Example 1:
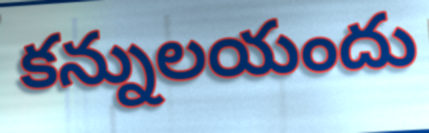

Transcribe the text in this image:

కన్నులయందు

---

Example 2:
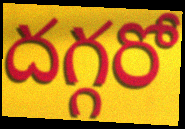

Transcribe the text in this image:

దగ్గరో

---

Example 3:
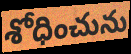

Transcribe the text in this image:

శోధించును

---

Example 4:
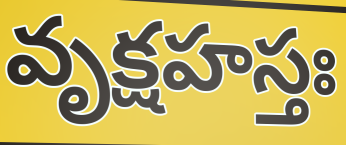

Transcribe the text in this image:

వృక్షహస్తః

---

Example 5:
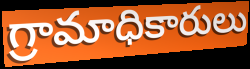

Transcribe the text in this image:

గ్రామాధికారులు